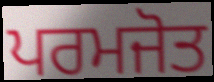
ਪਰਮਜੋਤ